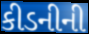
કીડનીની